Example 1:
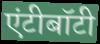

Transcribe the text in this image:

एंटीबॉटी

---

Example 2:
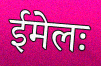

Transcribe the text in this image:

ईमेलः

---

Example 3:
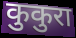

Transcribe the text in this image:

कुकुरा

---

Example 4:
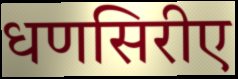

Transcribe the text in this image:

धणसिरीए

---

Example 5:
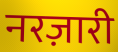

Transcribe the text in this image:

नरज़ारी